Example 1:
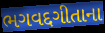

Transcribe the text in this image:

ભગવદ્દગીતાના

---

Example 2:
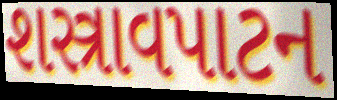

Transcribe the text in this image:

શસ્ત્રાવપાટન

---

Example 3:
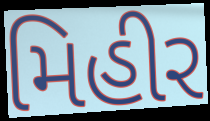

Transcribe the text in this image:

મિહીર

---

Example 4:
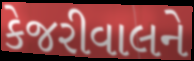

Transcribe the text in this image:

કેજરીવાલને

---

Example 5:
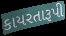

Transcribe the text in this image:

કાયરતારૂપી